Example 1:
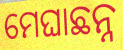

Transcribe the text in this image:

ମେଘାଛନ୍ନ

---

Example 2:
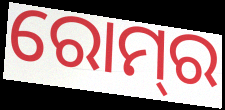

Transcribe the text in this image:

ରୋମ୍‌ର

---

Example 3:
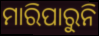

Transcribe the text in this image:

ମାରିପାରୁନି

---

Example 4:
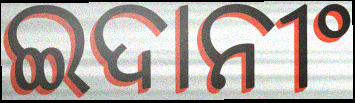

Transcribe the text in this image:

ଇଦାନୀଂ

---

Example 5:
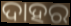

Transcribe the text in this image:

ଦାହର